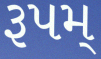
રૂપમ્